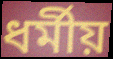
ধৰ্মীয়